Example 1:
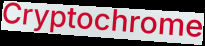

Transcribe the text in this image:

Cryptochrome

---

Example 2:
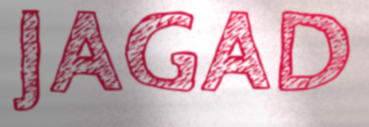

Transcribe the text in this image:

JAGAD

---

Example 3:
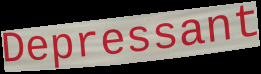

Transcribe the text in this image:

Depressant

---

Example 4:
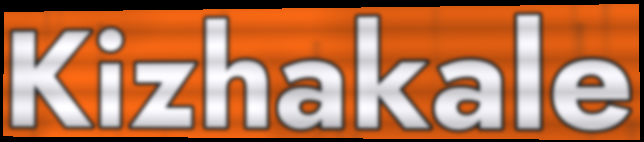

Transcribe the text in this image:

Kizhakale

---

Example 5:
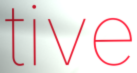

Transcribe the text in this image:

tive